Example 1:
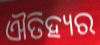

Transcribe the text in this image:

ଐତିହ୍ୟର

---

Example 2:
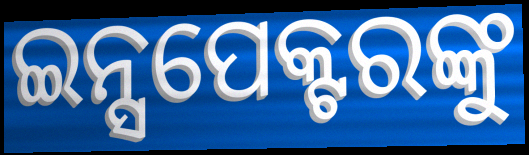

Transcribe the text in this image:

ଇନ୍ସପେକ୍ଟରଙ୍କୁ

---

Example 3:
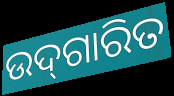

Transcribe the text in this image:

ଉଦ୍‌ଗାରିତ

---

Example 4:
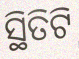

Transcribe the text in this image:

ସ୍ଥିତିଟି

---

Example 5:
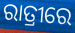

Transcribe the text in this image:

ରାତ୍ରୀରେ